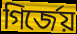
গির্জেয়